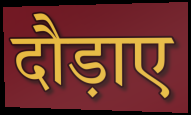
दौड़ाए